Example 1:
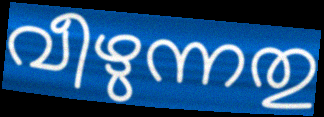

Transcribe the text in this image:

വീഴുന്നതു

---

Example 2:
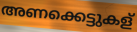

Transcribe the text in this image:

അണക്കെട്ടുകള്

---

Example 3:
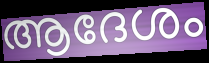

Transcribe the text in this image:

ആദേശം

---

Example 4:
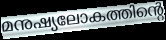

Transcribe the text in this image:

മനുഷ്യലോകത്തിന്റെ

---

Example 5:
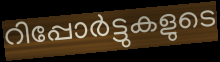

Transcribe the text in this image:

റിപ്പോർട്ടുകളുടെ